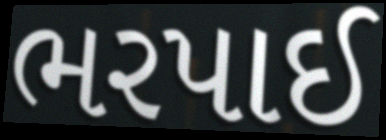
ભરપાઈ